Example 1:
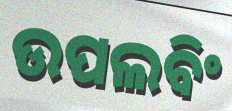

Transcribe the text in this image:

ଉପଲବିଂ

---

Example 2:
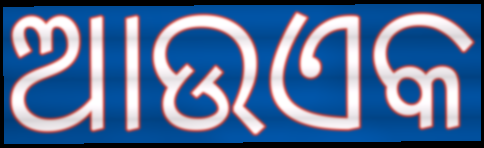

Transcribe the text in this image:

ଆଉଏକ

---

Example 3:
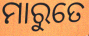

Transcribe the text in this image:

ମାରୁତେ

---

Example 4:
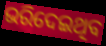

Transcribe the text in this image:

ଭରିଦେଇଥିବ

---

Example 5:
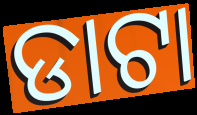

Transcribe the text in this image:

ଡାଟା